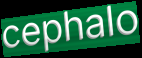
cephalo